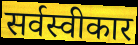
सर्वस्वीकार